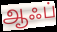
ஆஃப்